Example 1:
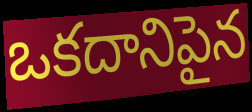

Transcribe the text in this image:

ఒకదానిపైన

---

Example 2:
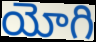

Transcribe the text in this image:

యోగి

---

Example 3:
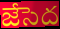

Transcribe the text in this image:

జేసెద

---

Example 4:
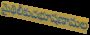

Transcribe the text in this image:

మైథిలీకుచభూషణామల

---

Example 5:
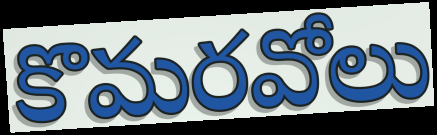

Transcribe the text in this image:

కొమరవోలు